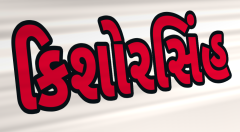
કિશોરસિંહ